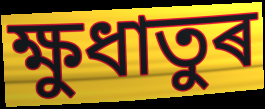
ক্ষুধাতুৰ